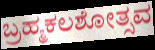
ಬ್ರಹ್ಮಕಲಶೋತ್ಸವ